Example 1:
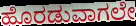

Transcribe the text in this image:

ಹೊರಡುವಾಗಲೇ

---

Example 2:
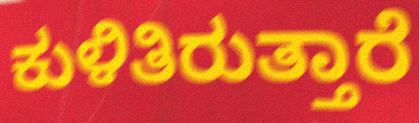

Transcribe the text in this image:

ಕುಳಿತಿರುತ್ತಾರೆ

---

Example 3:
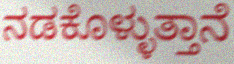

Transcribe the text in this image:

ನಡಕೊಳ್ಳುತ್ತಾನೆ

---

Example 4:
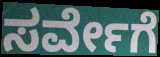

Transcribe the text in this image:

ಸರ್ವೇಗೆ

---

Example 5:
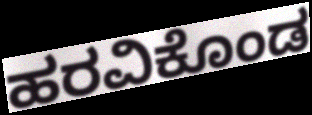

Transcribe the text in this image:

ಹರವಿಕೊಂಡ